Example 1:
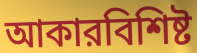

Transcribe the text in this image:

আকারবিশিষ্ট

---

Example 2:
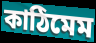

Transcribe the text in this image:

কাঠিমেম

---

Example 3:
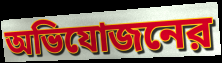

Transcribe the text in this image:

অভিযোজনের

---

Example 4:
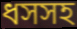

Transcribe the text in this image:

ধসসহ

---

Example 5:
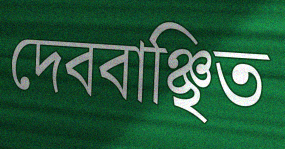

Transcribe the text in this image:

দেববাঞ্ছিত